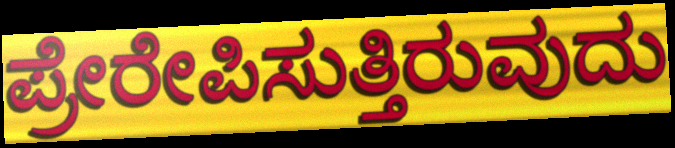
ಪ್ರೇರೇಪಿಸುತ್ತಿರುವುದು